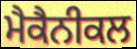
ਮੈਕੈਨੀਕਲ